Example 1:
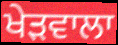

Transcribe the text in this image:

ਖੇੜਵਾਲਾ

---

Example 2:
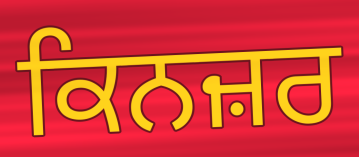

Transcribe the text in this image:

ਕਿਨਜ਼ਰ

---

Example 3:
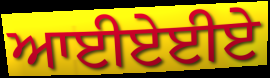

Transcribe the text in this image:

ਆਈਏਈਏ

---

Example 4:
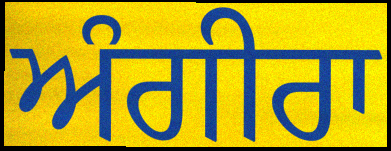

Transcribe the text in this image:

ਅੰਗੀਰਾ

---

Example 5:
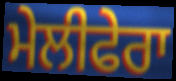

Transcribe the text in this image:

ਮੇਲੀਫੇਰਾ